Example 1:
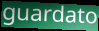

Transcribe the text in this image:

guardato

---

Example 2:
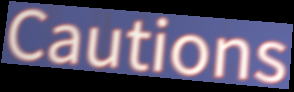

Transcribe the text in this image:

Cautions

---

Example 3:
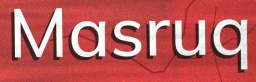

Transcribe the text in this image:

Masruq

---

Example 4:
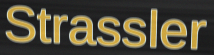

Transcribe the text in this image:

Strassler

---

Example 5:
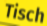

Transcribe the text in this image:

Tisch